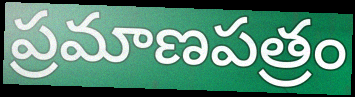
ప్రమాణపత్రం